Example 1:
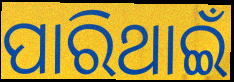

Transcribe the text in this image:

ପାରିଥାଇଁ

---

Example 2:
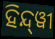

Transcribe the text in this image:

ହିନ୍ଦ୍‍ୱୀ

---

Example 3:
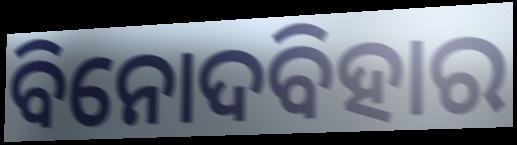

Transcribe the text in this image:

ବିନୋଦବିହାର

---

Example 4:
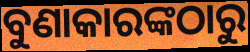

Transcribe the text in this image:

ବୁଣାକାରଙ୍କଠାରୁ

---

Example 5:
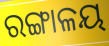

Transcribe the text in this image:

ରଙ୍ଗାଳୟ